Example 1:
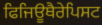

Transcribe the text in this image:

ਫਿਜਿਊਥੈਰੇਪਿਸਟ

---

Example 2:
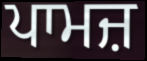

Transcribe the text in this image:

ਪਾਮਜ਼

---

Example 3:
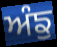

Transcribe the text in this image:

ਅੰਙੁ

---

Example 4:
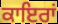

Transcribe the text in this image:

ਕਾਇਰਾਂ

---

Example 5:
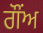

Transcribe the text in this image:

ਗੌਂਅ